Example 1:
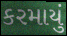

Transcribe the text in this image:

કરમાયું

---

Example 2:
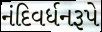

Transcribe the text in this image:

નંદિવર્ધનરૂપે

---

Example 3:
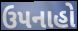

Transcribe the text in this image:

ઉપનાહો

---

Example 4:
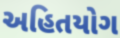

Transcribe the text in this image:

અહિતયોગ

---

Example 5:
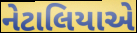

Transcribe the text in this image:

નેટાલિયાએ